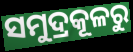
ସମୁଦ୍ରକୂଳରୁ